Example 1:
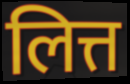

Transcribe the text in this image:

लित्त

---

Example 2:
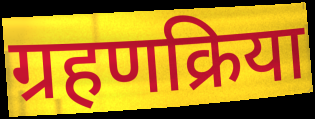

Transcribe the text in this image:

ग्रहणक्रिया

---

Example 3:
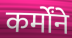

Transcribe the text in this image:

कर्मोंने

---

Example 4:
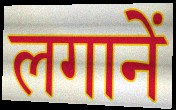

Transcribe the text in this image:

लगानें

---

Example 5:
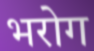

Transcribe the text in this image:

भरोग